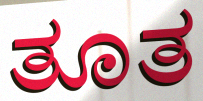
ತೂತ